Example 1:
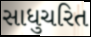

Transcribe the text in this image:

સાધુચરિત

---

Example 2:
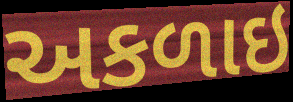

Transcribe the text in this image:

અકળાઇ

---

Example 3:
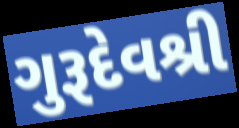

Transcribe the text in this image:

ગુરૂદેવશ્રી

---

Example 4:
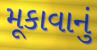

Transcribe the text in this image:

મૂકાવાનું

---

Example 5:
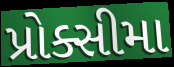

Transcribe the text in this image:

પ્રોક્સીમા